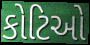
કોટિઓ